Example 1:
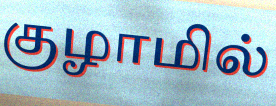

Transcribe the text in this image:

குழாமில்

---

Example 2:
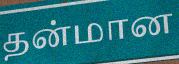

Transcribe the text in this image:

தன்மான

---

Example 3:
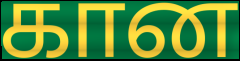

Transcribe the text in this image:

கான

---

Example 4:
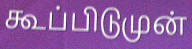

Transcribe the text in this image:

கூப்பிடுமுன்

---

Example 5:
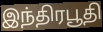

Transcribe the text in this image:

இந்திரபூதி